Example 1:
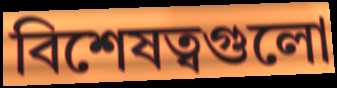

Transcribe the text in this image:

বিশেষত্বগুলো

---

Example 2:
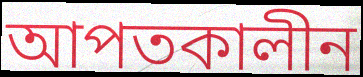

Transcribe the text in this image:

আপতকালীন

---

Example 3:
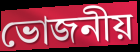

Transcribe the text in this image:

ভোজনীয়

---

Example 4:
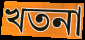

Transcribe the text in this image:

খতনা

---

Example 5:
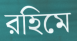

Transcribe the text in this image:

রহিমে